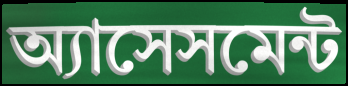
অ্যাসেসমেন্ট